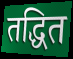
तद्धित